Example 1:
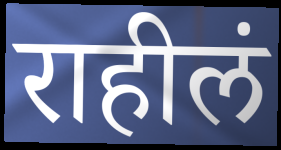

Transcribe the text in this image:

राहीलं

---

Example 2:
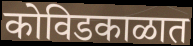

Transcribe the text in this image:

कोविडकाळात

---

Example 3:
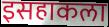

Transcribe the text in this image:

इसहाकला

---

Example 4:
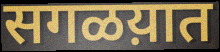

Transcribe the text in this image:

सगळय़ात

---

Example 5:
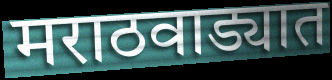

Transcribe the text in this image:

मराठवाड्यात